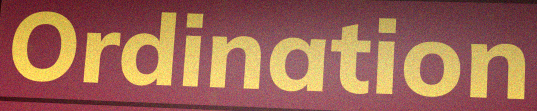
Ordination